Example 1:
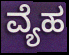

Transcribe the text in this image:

ವ್ಯೆಹ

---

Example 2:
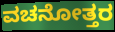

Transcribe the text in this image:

ವಚನೋತ್ತರ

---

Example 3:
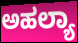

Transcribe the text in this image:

ಅಹಲ್ಯಾ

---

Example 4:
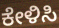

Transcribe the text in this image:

ಕೇಳಿಸಿ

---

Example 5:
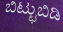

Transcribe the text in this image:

ಬಿಟ್ಟುಬಿಡಿ